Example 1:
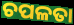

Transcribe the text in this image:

ଚପଳତା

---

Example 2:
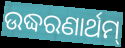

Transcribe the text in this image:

ଉଦ୍ଧରଣାର୍ଥମ୍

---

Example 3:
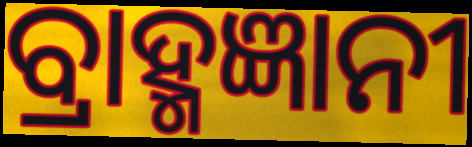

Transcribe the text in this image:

ବ୍ରାହ୍ମଜ୍ଞାନୀ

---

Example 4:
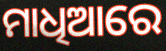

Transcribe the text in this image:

ମାଧିଆରେ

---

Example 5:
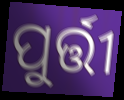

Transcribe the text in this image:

ପୁର୍ତ୍ତୀ